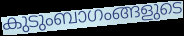
കുടുംബാഗംങ്ങളുടെ